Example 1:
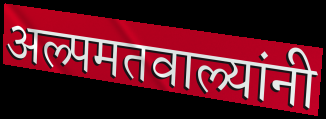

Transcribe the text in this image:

अल्पमतवाल्यांनी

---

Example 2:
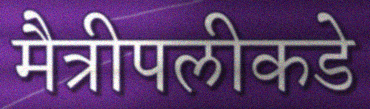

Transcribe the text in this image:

मैत्रीपलीकडे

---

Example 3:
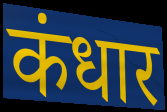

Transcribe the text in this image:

कंधार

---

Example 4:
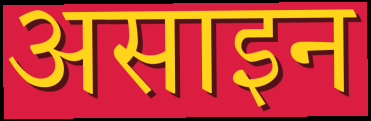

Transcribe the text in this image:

असाइन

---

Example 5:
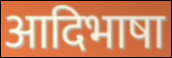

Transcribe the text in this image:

आदिभाषा